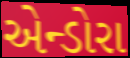
એન્ડોરા